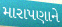
મારાપણાને